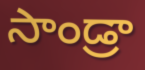
సాండ్రా